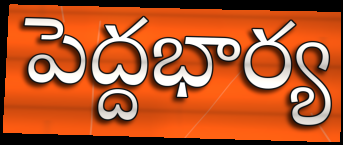
పెద్దభార్య